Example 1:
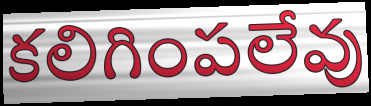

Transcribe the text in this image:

కలిగింపలేవు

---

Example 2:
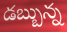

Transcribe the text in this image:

డబ్బున్న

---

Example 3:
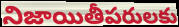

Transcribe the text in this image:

నిజాయితీపరులకు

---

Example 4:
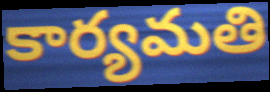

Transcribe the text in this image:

కార్యమతి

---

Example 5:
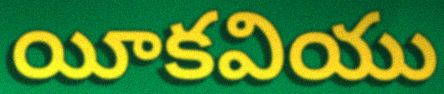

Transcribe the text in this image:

యీకవియు